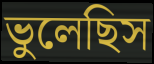
ভুলেছিস